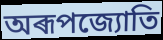
অৰূপজ্যোতি